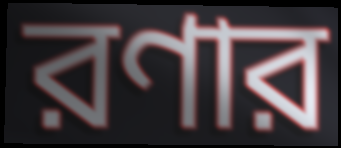
রণার